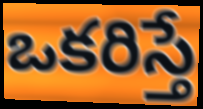
ఒకరిస్తే